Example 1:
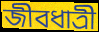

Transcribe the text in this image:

জীবধাত্রী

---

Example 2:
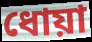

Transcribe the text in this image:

ধোয়া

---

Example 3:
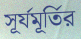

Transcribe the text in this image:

সূর্যমূর্তির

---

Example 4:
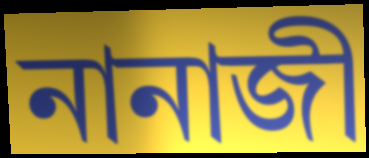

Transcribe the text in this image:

নানাজী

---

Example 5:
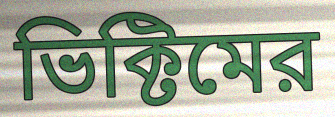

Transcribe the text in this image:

ভিক্টিমের